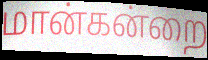
மான்கன்றை